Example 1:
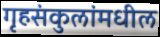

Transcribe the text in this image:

गृहसंकुलांमधील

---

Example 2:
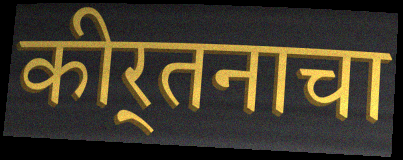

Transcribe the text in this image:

कीर्तनाचा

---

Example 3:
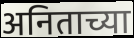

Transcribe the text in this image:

अनिताच्या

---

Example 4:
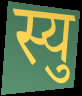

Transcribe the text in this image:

स्यु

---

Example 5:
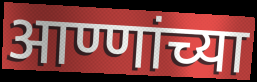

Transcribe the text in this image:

आण्णांच्या